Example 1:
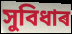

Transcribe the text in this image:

সুবিধাৰ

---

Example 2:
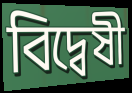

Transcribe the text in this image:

বিদ্বেষী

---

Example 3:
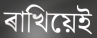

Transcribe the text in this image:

ৰাখিয়েই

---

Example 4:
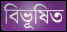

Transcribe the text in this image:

বিভূষিত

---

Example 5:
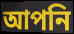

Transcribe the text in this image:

আপনি